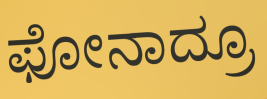
ಫೋನಾದ್ರೂ